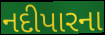
નદીપારના